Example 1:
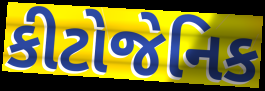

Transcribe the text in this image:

કીટોજેનિક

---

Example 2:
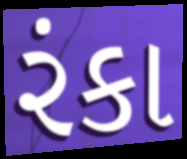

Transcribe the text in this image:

રંકા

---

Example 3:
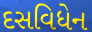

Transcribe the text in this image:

દસવિધેન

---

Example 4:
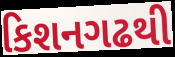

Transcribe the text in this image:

કિશનગઢથી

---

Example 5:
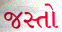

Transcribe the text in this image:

જસ્તો